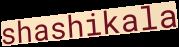
shashikala